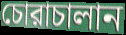
চোরাচালান